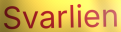
Svarlien